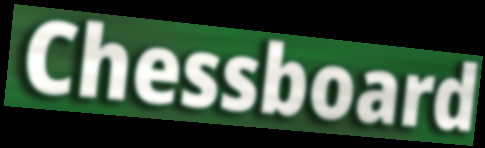
Chessboard